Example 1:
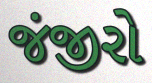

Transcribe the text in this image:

જંજીરો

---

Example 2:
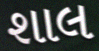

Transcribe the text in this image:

શાલ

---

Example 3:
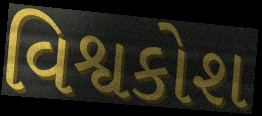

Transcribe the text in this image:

વિશ્વકોશ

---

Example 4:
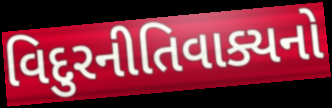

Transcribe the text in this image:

વિદુરનીતિવાક્યનો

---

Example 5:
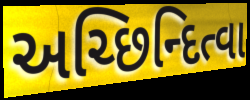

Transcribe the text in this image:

અચ્છિન્દિત્વા